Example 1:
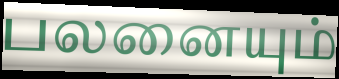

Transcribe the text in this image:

பலனையும்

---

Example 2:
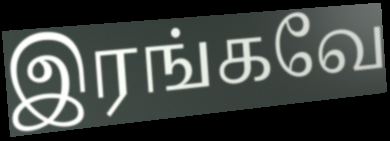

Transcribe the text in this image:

இரங்கவே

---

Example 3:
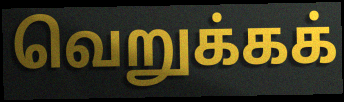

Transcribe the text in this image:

வெறுக்கக்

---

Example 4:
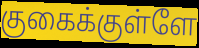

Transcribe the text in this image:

குகைக்குள்ளே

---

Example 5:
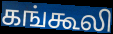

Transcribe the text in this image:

கங்கூலி